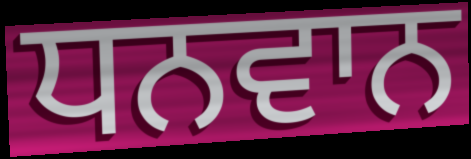
ਧਨਵਾਨ